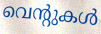
വെന്റുകൾ